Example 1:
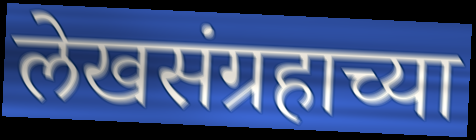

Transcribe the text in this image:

लेखसंग्रहाच्या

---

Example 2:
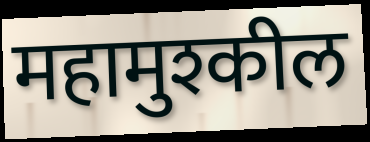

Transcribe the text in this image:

महामुश्कील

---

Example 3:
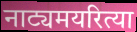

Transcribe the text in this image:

नाट्यमयरित्या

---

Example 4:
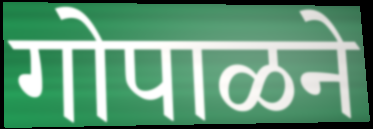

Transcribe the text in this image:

गोपाळने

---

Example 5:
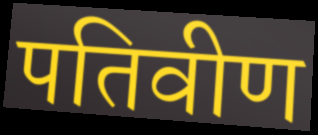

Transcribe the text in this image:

पतिवीण